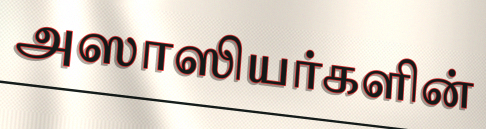
அஸாஸியர்களின்